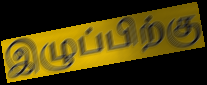
இழுப்பிற்கு